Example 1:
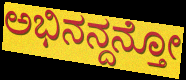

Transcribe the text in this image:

ಅಭಿನನ್ದನ್ತೋ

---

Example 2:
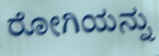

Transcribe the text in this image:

ರೋಗಿಯನ್ನು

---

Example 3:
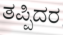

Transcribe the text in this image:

ತಪ್ಪಿದರ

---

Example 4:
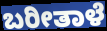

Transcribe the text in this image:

ಬರೀತಾಳೆ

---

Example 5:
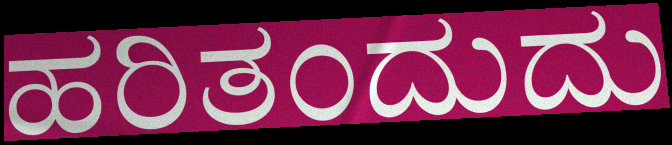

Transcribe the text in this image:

ಹರಿತಂದುದು